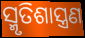
ସ୍ମୃତିଶାସ୍ତ୍ରଣ